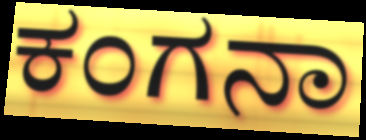
ಕಂಗನಾ